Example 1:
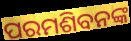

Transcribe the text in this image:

ପରମଶିବନଙ୍କ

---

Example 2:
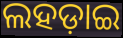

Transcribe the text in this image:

ଲହଡ଼ାଇ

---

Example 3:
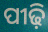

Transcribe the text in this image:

ପୀଢ଼ି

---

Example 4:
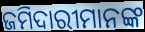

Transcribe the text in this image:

ଜମିଦାରୀମାନଙ୍କ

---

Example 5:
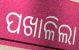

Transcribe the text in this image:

ପଖାଳିଲା